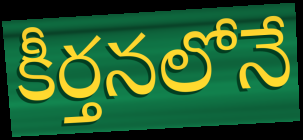
కీర్తనలోనే